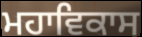
ਮਹਾਵਿਕਾਸ